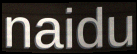
naidu